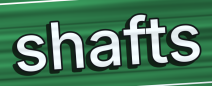
shafts